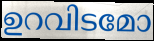
ഉറവിടമോ